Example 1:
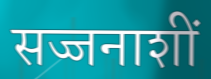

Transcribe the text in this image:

सज्जनाशीं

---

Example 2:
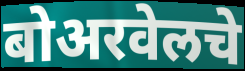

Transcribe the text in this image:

बोअरवेलचे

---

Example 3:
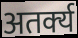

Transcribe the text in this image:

अतर्क्‍य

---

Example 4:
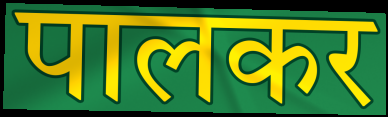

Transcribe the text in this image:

पालकर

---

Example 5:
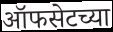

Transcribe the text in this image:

ऑफसेटच्या